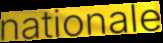
nationale